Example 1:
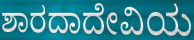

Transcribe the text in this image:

ಶಾರದಾದೇವಿಯ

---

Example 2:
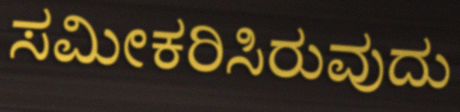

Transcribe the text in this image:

ಸಮೀಕರಿಸಿರುವುದು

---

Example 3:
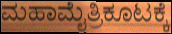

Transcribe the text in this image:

ಮಹಾಮೈತ್ರಿಕೂಟಕ್ಕೆ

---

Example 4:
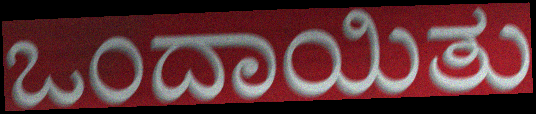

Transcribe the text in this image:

ಒಂದಾಯಿತು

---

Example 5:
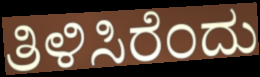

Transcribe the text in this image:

ತಿಳಿಸಿರೆಂದು